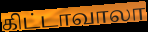
கிட்டாவாலா